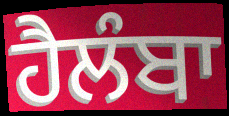
ਹੈਲੰਬਾ